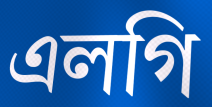
এলগি